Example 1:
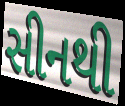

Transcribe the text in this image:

સીનથી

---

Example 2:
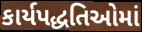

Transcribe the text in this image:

કાર્યપદ્ધતિઓમાં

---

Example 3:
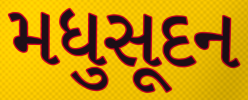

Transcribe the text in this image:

મધુસૂદન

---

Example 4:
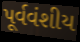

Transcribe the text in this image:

પૂર્વવંશીય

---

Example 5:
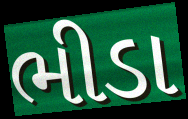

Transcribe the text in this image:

ભીડા